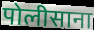
पोलीसाना